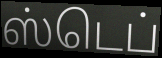
ஸ்டெப்